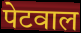
पेटवाल